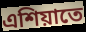
এশিয়াতে